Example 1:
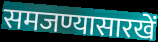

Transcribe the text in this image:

समजण्यासारखें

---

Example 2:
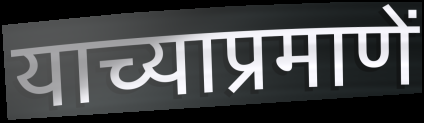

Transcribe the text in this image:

याच्याप्रमाणें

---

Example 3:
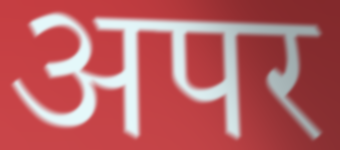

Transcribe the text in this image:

अपर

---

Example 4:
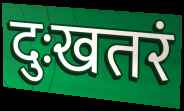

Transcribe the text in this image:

दुःखतरं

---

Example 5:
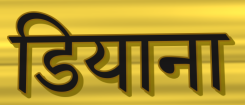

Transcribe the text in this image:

डियाना